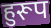
हुरूप